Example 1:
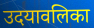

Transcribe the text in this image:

उदयावलिका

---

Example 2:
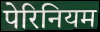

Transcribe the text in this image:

पेरिनियम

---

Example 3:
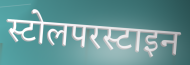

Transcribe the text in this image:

स्टोलपरस्टाइन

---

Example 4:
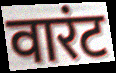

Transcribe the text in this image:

वारंट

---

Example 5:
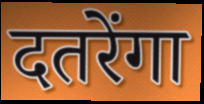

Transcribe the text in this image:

दतरेंगा